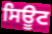
ਸਿਊਟ